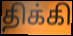
திக்கி